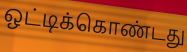
ஒட்டிக்கொண்டது